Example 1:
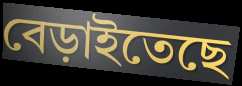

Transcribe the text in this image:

বেড়াইতেছে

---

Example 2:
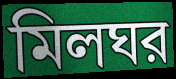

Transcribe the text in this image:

মিলঘর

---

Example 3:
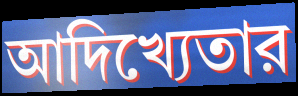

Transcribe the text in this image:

আদিখ্যেতার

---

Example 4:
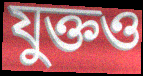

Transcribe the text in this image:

যুক্তও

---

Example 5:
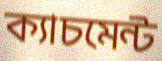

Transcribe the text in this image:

ক্যাচমেন্ট